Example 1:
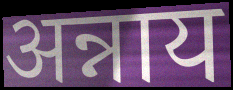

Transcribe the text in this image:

अन्नाय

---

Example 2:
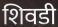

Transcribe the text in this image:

शिवडी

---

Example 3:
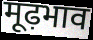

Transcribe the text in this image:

मूढ़भाव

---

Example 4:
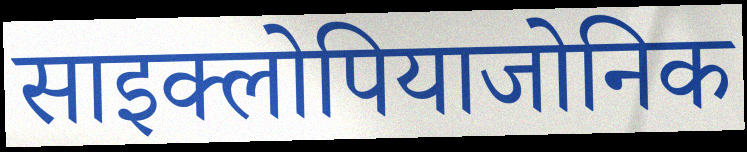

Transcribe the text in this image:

साइक्लोपियाजोनिक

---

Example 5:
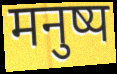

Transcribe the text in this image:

मनुष्य